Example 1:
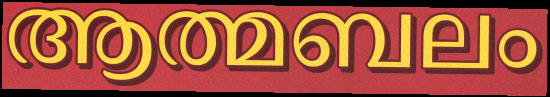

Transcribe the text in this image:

ആത്മബലം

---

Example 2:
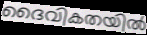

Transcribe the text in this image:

ദൈവികതയിൽ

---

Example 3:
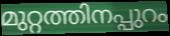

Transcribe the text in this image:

മുറ്റത്തിനപ്പുറം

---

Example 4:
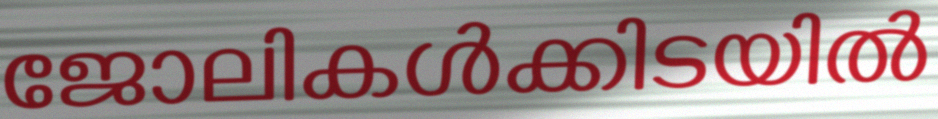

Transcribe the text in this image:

ജോലികൾക്കിടയിൽ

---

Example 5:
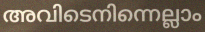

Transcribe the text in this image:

അവിടെനിന്നെല്ലാം